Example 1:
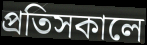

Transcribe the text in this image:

প্রতিসকালে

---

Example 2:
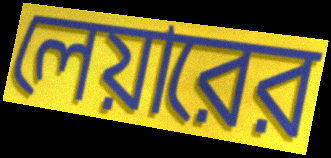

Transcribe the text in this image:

লেয়ারের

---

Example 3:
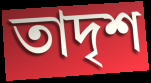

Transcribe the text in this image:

তাদৃশ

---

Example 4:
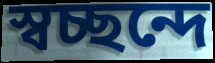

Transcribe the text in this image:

স্বচ্ছন্দে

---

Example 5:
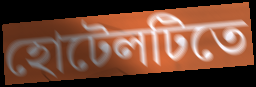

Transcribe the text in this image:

হোটেলটিতে